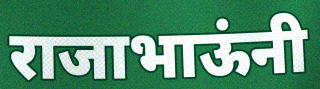
राजाभाऊंनी